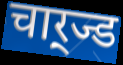
चार्ज्ड